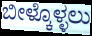
ಬೀಳ್ಕೊಳ್ಳಲು